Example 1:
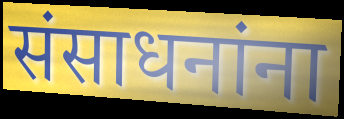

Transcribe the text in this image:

संसाधनांना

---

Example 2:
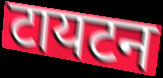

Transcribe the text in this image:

टायटन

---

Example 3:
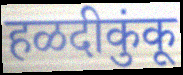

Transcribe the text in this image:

हळदीकुंकू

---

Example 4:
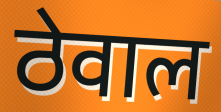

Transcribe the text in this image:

ठेवाल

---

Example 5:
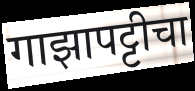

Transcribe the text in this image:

गाझापट्टीचा